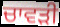
ਚਾਵੜੀ